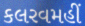
કલરવમહીં